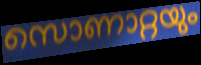
സൊണാറ്റയും